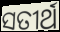
ସତୀର୍ଥ